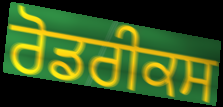
ਰੋਡਰੀਕਸ